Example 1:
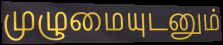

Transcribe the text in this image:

முழுமையுடனும்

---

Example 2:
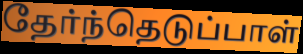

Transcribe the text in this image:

தேர்ந்தெடுப்பாள்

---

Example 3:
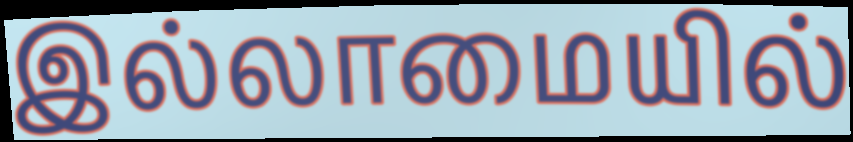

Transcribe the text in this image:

இல்லாமையில்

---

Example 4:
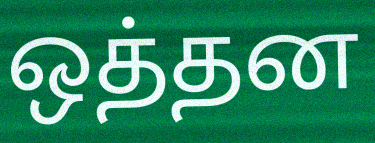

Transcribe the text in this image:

ஒத்தன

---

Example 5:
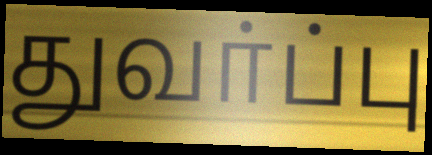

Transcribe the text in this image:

துவர்ப்பு